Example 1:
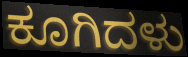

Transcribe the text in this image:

ಕೂಗಿದಳು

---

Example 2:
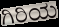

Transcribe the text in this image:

ಗಿರಿಯ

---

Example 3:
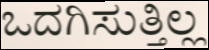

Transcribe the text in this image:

ಒದಗಿಸುತ್ತಿಲ್ಲ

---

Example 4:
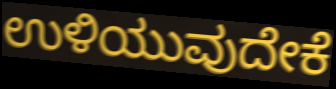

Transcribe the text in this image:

ಉಳಿಯುವುದೇಕೆ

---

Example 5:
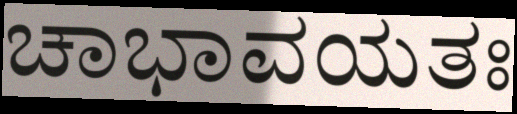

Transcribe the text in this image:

ಚಾಭಾವಯತಃ